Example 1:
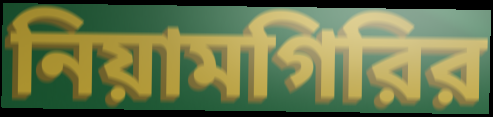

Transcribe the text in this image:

নিয়ামগিরির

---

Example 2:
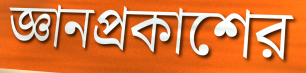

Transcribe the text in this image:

জ্ঞানপ্রকাশের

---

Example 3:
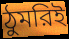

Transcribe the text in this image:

ঠুমরিই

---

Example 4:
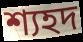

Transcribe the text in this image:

শ্যহদ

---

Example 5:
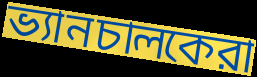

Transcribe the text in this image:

ভ্যানচালকেরা